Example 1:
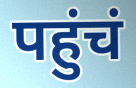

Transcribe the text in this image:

पहुंचं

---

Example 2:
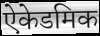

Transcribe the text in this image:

ऐकेडमिक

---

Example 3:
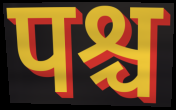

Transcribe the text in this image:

पश्च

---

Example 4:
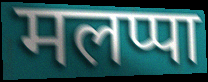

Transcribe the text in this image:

मलप्पा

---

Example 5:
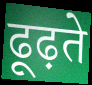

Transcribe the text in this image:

ढूढ़ते